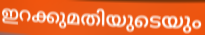
ഇറക്കുമതിയുടെയും